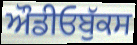
ਔਡੀਓਬੁੱਕਸ